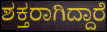
ಶಕ್ತರಾಗಿದ್ದಾರೆ